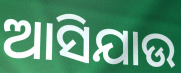
ଆସିଯାଉ